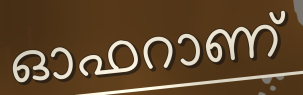
ഓഫറാണ്